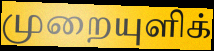
முறையுளிக்